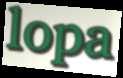
lopa